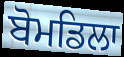
ਬੋਮਡਿਲਾ